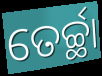
ତେର୍ଚ୍ଛା